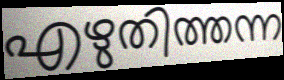
എഴുതിത്തന്ന